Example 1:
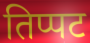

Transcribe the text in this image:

तिप्पट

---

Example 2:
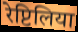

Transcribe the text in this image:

रेप्टिलिया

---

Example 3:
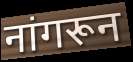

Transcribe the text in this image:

नांगरून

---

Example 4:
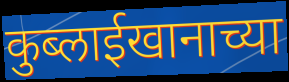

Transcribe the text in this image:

कुब्लाईखानाच्या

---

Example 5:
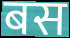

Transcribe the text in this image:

बस